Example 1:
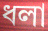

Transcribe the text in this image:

ধলা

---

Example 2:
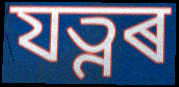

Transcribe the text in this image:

যত্নৰ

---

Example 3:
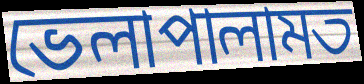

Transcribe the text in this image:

ভেলাপালামত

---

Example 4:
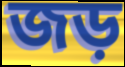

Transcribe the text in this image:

জড়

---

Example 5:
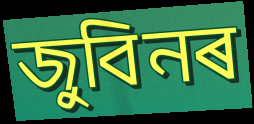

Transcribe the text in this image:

জুবিনৰ